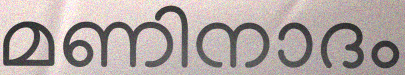
മണിനാദം